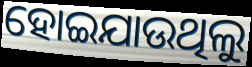
ହୋଇଯାଉଥିଲୁ